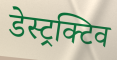
डेस्ट्रक्टिव